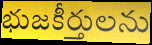
భుజకీర్తులను